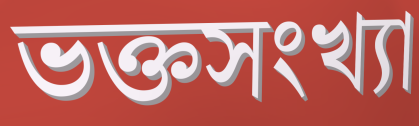
ভক্তসংখ্যা